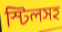
স্টিলসহ